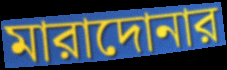
মারাদোনার